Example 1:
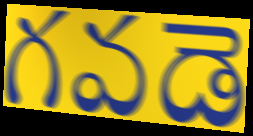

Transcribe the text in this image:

గవడె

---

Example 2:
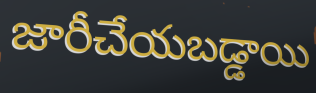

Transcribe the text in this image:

జారీచేయబడ్డాయి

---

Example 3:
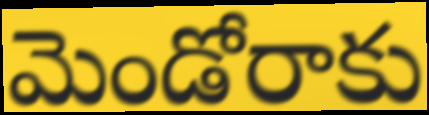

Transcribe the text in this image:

మెండోరాకు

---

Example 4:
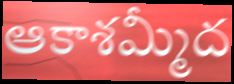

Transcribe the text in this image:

ఆకాశమ్మీద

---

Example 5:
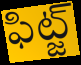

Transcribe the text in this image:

ఫిట్జ్